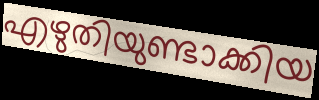
എഴുതിയുണ്ടാക്കിയ